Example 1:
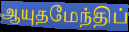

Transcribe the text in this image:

ஆயுதமேந்திப்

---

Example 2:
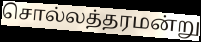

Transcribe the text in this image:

சொல்லத்தரமன்று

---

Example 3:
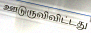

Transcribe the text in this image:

ஊடுருவிவிட்டது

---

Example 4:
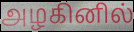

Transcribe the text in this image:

அழகினில்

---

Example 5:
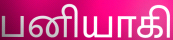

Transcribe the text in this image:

பனியாகி